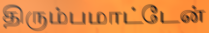
திரும்பமாட்டேன்